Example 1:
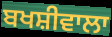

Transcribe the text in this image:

ਬਖਸ਼ੀਵਾਲਾ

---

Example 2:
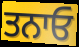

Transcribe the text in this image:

ਤਨਾਓ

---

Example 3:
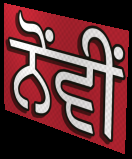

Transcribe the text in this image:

ਨੋਂਵੀਂ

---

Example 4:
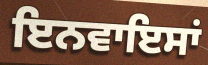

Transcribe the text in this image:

ਇਨਵਾਇਸਾਂ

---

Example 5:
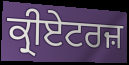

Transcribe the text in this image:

ਕ੍ਰੀਏਟਰਜ਼